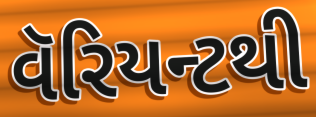
વૅરિયન્ટથી